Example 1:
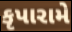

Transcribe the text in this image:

કૃપારામે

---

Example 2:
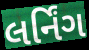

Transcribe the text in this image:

લર્નિંગ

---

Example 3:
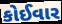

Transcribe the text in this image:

કોઈવાર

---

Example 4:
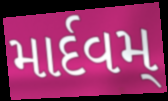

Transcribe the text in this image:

માર્દવમ્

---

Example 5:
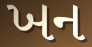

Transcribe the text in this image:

ખન